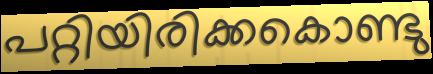
പറ്റിയിരിക്കകൊണ്ടു